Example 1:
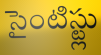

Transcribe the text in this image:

సైంటిస్ట్లు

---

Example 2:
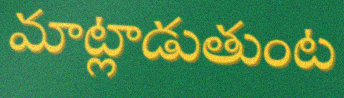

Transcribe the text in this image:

మాట్లాడుతుంట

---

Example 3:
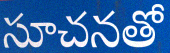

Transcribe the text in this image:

సూచనతో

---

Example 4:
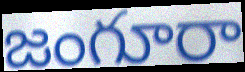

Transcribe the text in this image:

జంగూరా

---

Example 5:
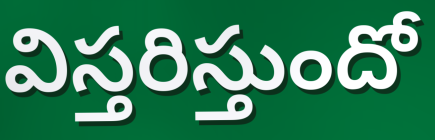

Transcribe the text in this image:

విస్తరిస్తుందో